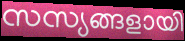
സസ്യങ്ങളായി